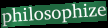
philosophize